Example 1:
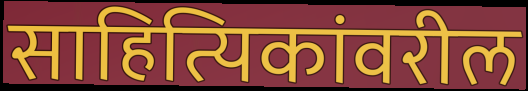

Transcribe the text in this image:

साहित्यिकांवरील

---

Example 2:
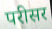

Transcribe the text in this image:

परीसर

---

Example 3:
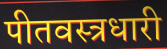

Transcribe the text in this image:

पीतवस्त्रधारी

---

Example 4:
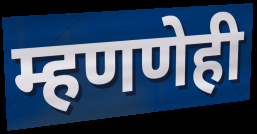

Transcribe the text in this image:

म्हणणेही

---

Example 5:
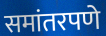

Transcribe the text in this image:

समांतरपणे